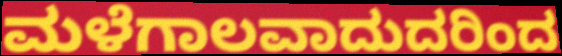
ಮಳೆಗಾಲವಾದುದರಿಂದ